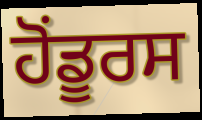
ਹੋਂਡੂਰਸ